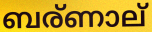
ബര്ണാല്